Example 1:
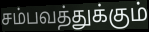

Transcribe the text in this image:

சம்பவத்துக்கும்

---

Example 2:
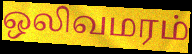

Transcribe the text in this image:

ஒலிவமரம்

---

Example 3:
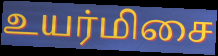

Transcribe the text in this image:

உயர்மிசை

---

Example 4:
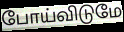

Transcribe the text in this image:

போய்விடுமே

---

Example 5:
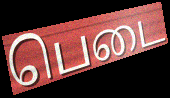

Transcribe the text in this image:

பெடை